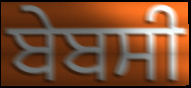
ਬੇਬਸੀ